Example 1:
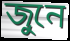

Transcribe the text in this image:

জুনে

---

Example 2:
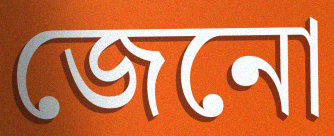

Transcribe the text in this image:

জেনো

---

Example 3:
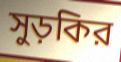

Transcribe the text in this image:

সুড়কির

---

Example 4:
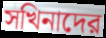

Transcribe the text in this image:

সখিনাদের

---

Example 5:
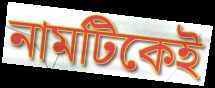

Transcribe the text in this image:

নামটিকেই